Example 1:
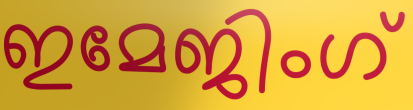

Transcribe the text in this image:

ഇമേജിംഗ്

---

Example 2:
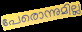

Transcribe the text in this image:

പേരൊന്നുമില്ല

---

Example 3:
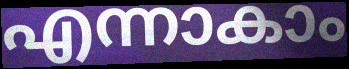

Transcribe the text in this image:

എന്നാകാം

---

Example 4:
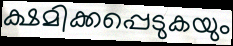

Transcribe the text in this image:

ക്ഷമിക്കപ്പെടുകയും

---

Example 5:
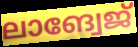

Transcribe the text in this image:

ലാങ്വേജ്